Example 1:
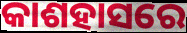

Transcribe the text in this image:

କାଶହାସରେ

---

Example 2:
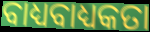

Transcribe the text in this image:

ବାଧ୍ୟବାଧ୍ୟକତା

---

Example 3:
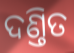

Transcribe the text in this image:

ଦଣ୍ତିତ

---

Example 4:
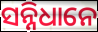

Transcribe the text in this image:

ସନ୍ନିଧାନେ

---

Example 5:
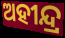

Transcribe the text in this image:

ଅହୀନ୍ଦ୍ର